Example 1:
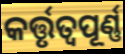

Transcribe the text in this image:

କର୍ତ୍ତୃତ୍ୱପୂର୍ଣ୍ଣ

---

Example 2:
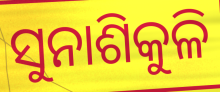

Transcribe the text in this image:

ସୁନାଶିକୁଳି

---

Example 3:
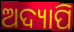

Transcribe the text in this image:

ଅଦ୍ୟାପି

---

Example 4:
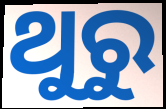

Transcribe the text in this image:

ଥୁରୁ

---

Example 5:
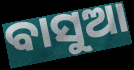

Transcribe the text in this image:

ବାସୁଆ